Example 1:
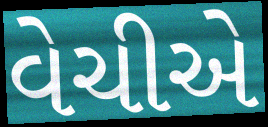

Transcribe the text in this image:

વેચીએ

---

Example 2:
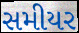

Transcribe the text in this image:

સમીયર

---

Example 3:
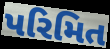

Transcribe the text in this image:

પરિમિત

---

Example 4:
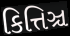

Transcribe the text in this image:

કિત્તિઞ્ચ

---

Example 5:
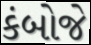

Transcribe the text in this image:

કંબોજે